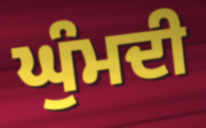
ਘੁੰਮਦੀ